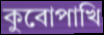
কুবোপাখি